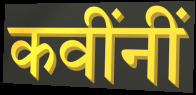
कवींनीं